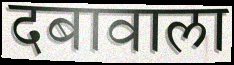
दबावाला